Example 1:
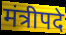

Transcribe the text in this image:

मंत्रीपदे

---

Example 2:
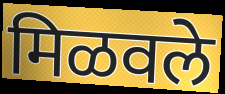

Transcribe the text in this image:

मिळवले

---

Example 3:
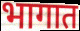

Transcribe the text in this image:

भागात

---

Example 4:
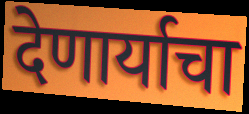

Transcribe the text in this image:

देणार्याचा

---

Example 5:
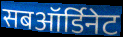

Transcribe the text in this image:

सबऑर्डिनेट